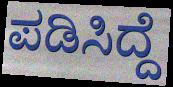
ಪಡಿಸಿದ್ದೆ